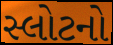
સ્લોટનો